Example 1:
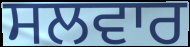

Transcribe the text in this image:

ਸਲਵਾਰ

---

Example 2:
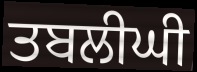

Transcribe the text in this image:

ਤਬਲੀਘੀ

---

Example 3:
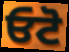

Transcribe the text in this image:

ਓਟੋ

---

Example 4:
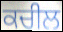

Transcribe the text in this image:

ਕਚੀਲ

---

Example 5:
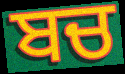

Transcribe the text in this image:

ਬਚ